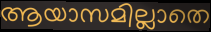
ആയാസമില്ലാതെ